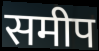
समीप